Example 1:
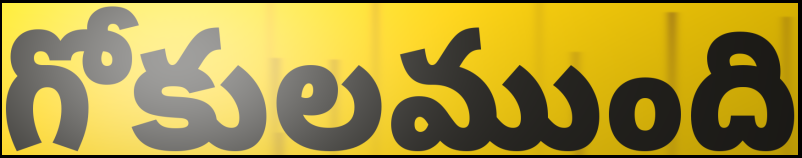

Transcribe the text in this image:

గోకులముంది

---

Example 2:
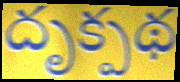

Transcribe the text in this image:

దృక్పథ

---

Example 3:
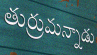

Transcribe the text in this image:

తుర్రుమన్నాడు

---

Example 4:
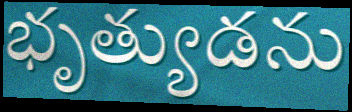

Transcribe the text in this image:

భృత్యుడను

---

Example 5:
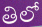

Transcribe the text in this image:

తిలో